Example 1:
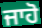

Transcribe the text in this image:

ਜਾਹੋ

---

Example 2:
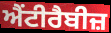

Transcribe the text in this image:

ਐਂਟੀਰੈਬੀਜ਼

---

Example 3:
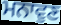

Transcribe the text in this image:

ਮਨਾਵੁਣ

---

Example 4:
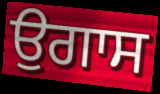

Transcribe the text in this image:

ਉਗਾਸ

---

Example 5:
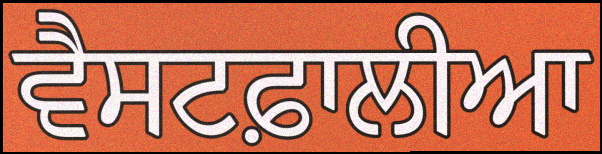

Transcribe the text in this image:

ਵੈਸਟਫ਼ਾਲੀਆ